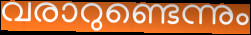
വരാറുണ്ടെന്നും